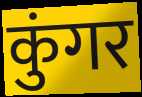
कुंगर